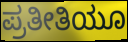
ಪ್ರತೀತಿಯೂ